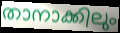
താനാക്കിലും